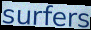
surfers